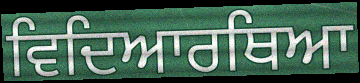
ਵਿਦਿਆਰਥਿਆ